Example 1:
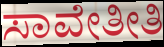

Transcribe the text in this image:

ಸಾವೇತೀತಿ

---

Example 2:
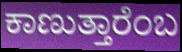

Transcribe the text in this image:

ಕಾಣುತ್ತಾರೆಂಬ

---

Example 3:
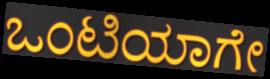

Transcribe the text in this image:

ಒಂಟಿಯಾಗೇ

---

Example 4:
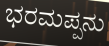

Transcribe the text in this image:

ಭರಮಪ್ಪನು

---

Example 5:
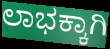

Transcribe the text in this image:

ಲಾಭಕ್ಕಾಗಿ